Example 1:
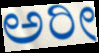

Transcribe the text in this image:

ಅರೀ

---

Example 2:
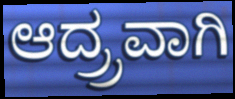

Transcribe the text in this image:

ಆದ್ರ್ರವಾಗಿ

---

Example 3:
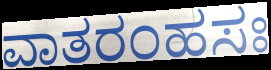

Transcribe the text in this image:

ವಾತರಂಹಸಃ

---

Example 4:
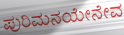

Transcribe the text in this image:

ಪುರಿಮನಯೇನೇವ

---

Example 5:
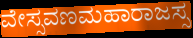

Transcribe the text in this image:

ವೇಸ್ಸವಣಮಹಾರಾಜಸ್ಸ